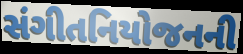
સંગીતનિયોજનની